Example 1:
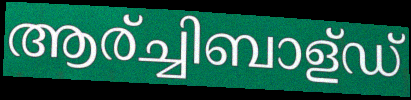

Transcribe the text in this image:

ആര്ച്ചിബാള്ഡ്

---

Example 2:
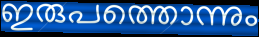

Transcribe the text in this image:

ഇരുപത്തൊന്നും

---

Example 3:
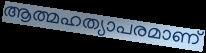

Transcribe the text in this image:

ആത്മഹത്യാപരമാണ്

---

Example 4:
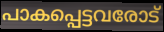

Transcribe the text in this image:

പാകപ്പെട്ടവരോട്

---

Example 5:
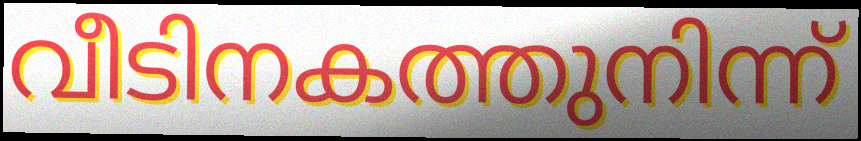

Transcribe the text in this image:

വീടിനകത്തുനിന്ന്